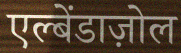
एल्बेंडाज़ोल